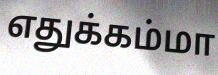
எதுக்கம்மா